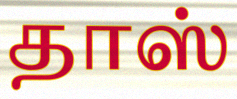
தாஸ்